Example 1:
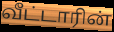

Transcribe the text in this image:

வீட்டாரின்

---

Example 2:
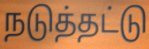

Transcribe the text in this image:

நடுத்தட்டு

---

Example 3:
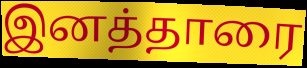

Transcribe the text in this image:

இனத்தாரை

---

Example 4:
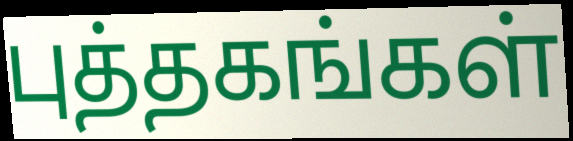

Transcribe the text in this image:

புத்தகங்கள்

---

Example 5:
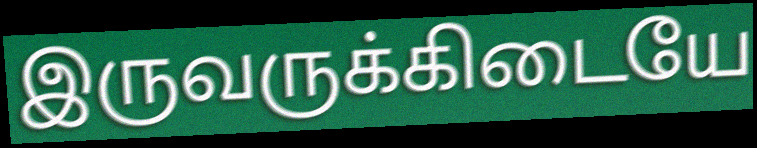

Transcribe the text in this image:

இருவருக்கிடையே